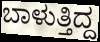
ಬಾಳುತ್ತಿದ್ದ